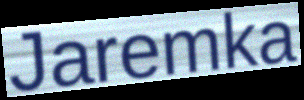
Jaremka